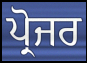
ਪ੍ਰੋਜਰ